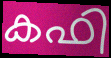
കഫി